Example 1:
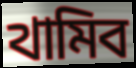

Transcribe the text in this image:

থামিব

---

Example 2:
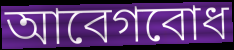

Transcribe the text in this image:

আবেগবোধ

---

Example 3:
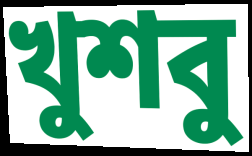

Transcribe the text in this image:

খুশবু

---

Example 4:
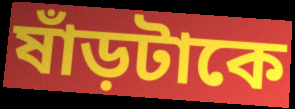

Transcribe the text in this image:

ষাঁড়টাকে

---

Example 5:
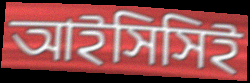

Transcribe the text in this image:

আইসিসিই